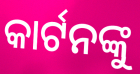
କାର୍ଟନଙ୍କୁ